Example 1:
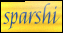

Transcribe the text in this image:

sparshi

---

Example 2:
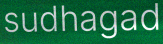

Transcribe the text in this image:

sudhagad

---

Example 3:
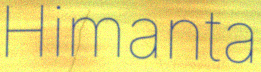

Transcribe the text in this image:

Himanta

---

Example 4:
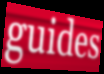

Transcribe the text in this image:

guides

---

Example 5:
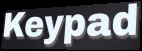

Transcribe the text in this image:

Keypad